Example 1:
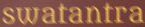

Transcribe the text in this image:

swatantra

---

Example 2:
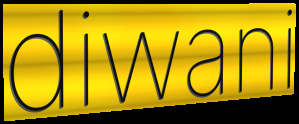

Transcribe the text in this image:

diwani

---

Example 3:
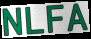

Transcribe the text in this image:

NLFA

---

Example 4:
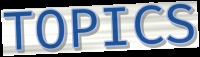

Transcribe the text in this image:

TOPICS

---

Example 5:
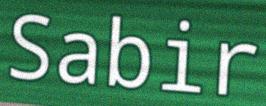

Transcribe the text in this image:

Sabir